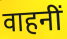
वाहनीं